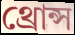
থ্রোন্স